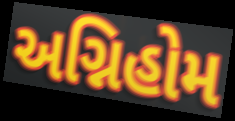
અગ્નિહોમ